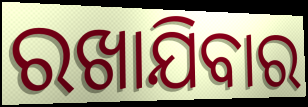
ରଖାଯିବାର